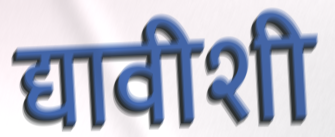
द्यावीशी